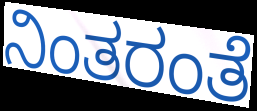
ನಿಂತರಂತೆ